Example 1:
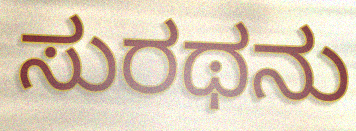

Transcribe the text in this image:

ಸುರಥನು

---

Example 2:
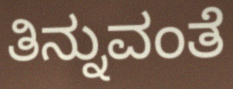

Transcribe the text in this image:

ತಿನ್ನುವಂತೆ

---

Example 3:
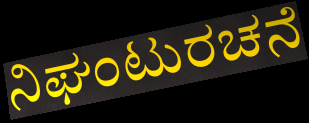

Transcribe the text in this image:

ನಿಘಂಟುರಚನೆ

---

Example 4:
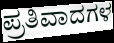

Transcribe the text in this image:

ಪ್ರತಿವಾದಗಳ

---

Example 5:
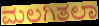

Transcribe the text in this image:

ಮಲಗಿತಲಾ